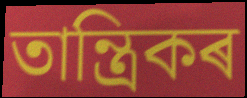
তান্ত্ৰিকৰ